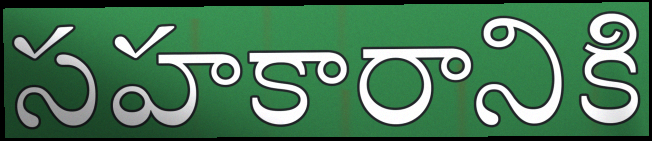
సహకారానికి